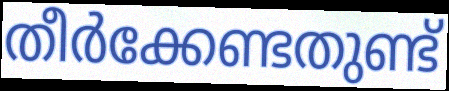
തീർക്കേണ്ടതുണ്ട്